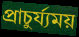
প্ৰাচুৰ্য্যময়